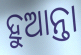
ହୁଆନ୍ତା